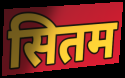
सितम